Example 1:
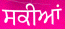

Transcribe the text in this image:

ਸਕੀਆਂ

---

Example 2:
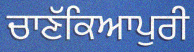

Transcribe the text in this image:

ਚਾਣੱਕਿਆਪੁਰੀ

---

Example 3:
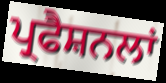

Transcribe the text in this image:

ਪ੍ਰਫੈਸ਼ਨਲਾਂ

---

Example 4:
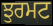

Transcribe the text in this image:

ਝੁਰਮਟ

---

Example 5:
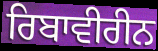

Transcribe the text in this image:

ਰਿਬਾਵੀਰੀਨ